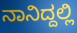
ನಾನಿದ್ದಲ್ಲಿ